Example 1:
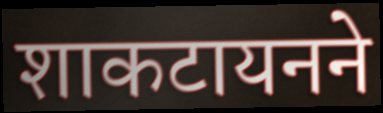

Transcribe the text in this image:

शाकटायनने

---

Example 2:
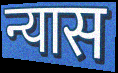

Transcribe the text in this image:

न्‍यास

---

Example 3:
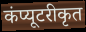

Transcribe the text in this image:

कंप्यूटरीकृत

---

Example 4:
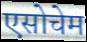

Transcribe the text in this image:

एसोचेम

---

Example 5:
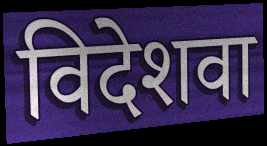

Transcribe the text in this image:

विदेशवा